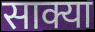
साक्या